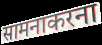
सामनाकरना